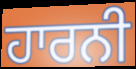
ਹਾਰਨੀ